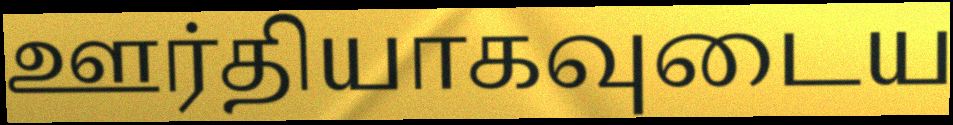
ஊர்தியாகவுடைய